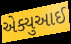
એક્યુઆઈ